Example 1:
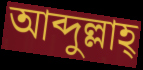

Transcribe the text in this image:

আব্দুল্লাহ্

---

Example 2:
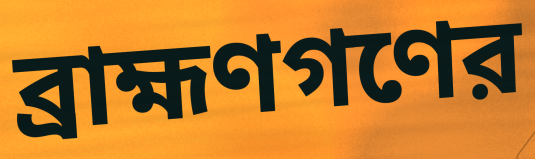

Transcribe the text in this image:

ব্রাহ্মণগণের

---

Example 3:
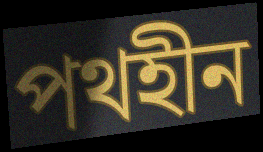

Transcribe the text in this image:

পথহীন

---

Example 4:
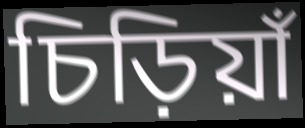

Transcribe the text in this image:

চিড়িয়াঁ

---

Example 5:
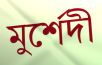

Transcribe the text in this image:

মুর্শেদী